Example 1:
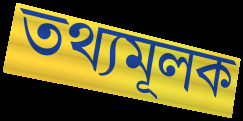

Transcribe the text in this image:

তথ্যমূলক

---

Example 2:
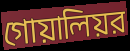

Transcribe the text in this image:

গোয়ালিয়র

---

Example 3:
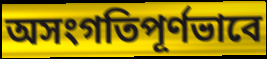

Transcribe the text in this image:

অসংগতিপূর্ণভাবে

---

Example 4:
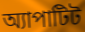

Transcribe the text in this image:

অ্যাপাটিট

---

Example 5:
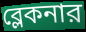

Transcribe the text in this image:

ব্লেকনার